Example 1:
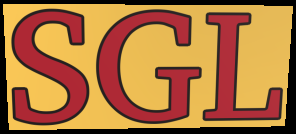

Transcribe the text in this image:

SGL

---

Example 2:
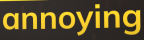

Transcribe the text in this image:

annoying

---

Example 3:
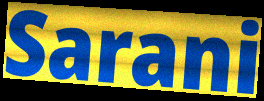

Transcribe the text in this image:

Sarani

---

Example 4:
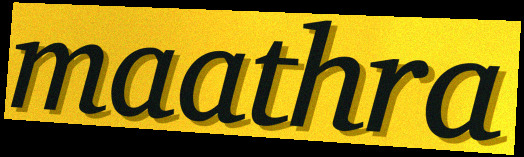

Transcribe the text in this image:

maathra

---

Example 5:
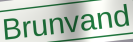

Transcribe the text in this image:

Brunvand